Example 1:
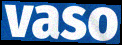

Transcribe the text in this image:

vaso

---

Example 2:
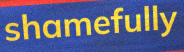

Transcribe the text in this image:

shamefully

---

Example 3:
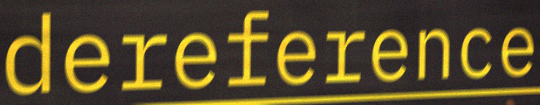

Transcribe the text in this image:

dereference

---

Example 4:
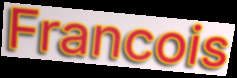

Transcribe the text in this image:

Francois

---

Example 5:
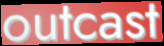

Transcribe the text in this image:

outcast